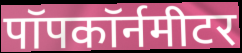
पॉपकॉर्नमीटर